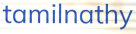
tamilnathy